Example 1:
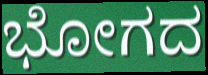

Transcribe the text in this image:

ಭೋಗದ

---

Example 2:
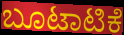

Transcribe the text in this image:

ಬೂಟಾಟಿಕೆ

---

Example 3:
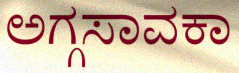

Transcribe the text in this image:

ಅಗ್ಗಸಾವಕಾ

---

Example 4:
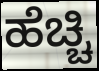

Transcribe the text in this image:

ಹೆಚ್ಚಿ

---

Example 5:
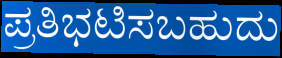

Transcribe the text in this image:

ಪ್ರತಿಭಟಿಸಬಹುದು